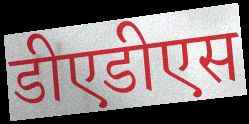
डीएडीएस